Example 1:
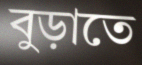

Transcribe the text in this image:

বুড়াতে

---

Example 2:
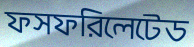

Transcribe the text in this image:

ফসফরিলেটেড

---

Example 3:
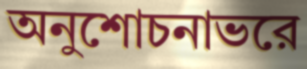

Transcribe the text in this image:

অনুশোচনাভরে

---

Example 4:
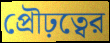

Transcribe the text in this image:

প্রৌঢ়ত্বের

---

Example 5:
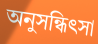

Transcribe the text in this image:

অনুসন্ধিৎসা